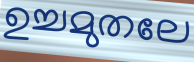
ഉച്ചമുതലേ